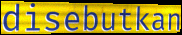
disebutkan